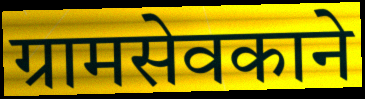
ग्रामसेवकाने